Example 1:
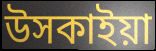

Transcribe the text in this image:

উসকাইয়া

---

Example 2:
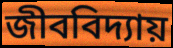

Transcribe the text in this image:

জীববিদ্যায়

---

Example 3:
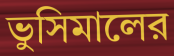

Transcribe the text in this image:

ভুসিমালের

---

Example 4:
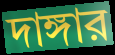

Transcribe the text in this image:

দাঙ্গার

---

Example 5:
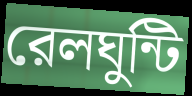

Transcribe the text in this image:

রেলঘুন্টি